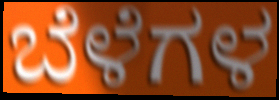
ಬೆಳೆಗಳ